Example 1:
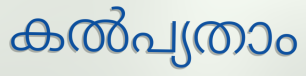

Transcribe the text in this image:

കൽപ്യതാം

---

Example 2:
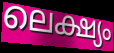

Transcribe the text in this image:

ലെക്ഷ്യം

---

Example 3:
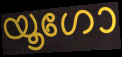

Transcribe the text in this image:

യൂഗോ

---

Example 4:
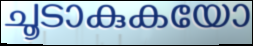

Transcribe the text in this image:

ചൂടാകുകയോ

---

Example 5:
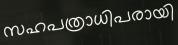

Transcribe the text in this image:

സഹപത്രാധിപരായി